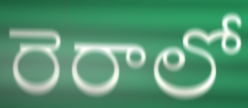
రెరాలో